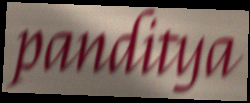
panditya